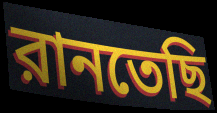
রানতেছি